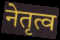
नेतृत्व